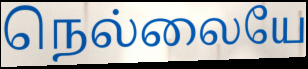
நெல்லையே